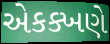
એકક્ખણે